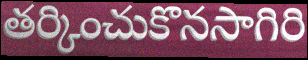
తర్కించుకొనసాగిరి